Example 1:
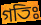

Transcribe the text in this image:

গতিঃ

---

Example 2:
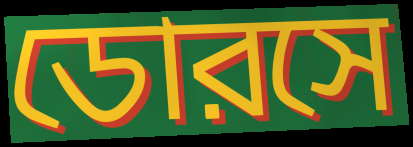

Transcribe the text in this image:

ডোরসে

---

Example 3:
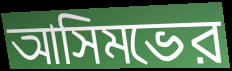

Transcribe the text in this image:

আসিমভের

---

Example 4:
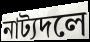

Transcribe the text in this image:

নাট্যদলে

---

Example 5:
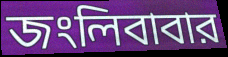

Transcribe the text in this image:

জংলিবাবার